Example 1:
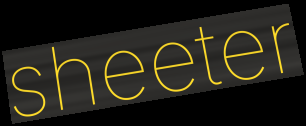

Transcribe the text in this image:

sheeter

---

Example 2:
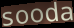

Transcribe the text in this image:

sooda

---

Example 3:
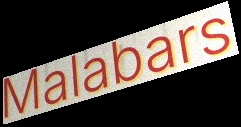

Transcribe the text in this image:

Malabars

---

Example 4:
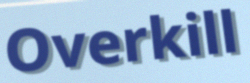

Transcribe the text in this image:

Overkill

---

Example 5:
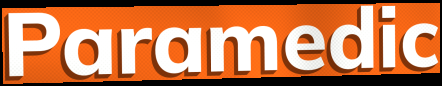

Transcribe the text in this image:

Paramedic